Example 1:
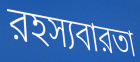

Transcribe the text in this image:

রহস্যবারতা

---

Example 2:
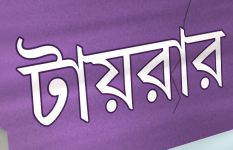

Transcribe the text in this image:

টায়রার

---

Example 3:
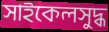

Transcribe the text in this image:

সাইকেলসুদ্ধ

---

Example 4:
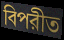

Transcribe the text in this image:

বিপরীত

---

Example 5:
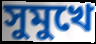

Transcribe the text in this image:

সুমুখে